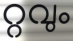
റ്റവും